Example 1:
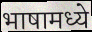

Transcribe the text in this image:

भाषामध्ये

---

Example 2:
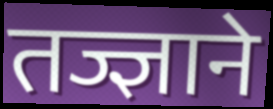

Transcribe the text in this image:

तज्ज्ञाने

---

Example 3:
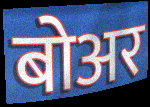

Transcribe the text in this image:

बोअर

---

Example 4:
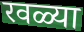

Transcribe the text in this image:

रवळ्या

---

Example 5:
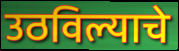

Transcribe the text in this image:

उठविल्याचे